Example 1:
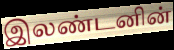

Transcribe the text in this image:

இலண்டனின்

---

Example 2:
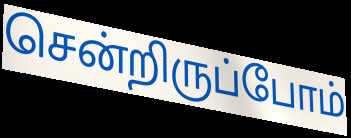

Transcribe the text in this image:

சென்றிருப்போம்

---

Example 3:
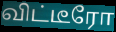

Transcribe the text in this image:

விட்டீரோ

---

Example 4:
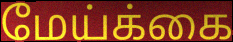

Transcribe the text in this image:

மேய்க்கை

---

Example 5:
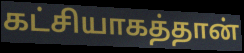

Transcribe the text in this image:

கட்சியாகத்தான்